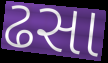
ઢસા